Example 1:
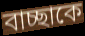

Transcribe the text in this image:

বাচ্ছাকে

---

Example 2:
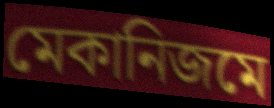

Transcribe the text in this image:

মেকানিজমে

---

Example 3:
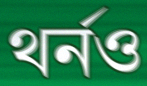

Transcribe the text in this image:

থর্নও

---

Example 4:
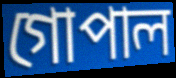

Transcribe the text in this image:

গোপাল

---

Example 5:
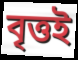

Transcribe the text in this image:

বৃত্তই